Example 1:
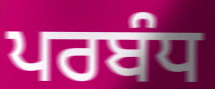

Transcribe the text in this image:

ਪਰਬੰਧ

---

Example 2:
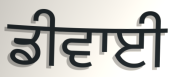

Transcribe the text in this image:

ਡੀਵਾਈ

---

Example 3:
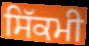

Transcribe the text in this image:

ਸਿੱਕਮੀ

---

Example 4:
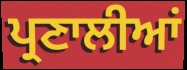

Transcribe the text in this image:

ਪ੍ਰਣਾਲੀਆਂ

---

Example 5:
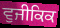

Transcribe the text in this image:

ਵੁਜੀਕਿਕ